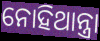
ନୋହିଥାନ୍ତ୍ରା